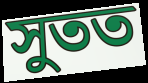
সুতত